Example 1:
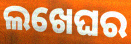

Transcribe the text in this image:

ଲଖେଘର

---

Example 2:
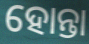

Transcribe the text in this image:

ହୋନ୍ତା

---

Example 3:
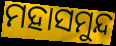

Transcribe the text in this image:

ମହାସମୁନ୍ଦ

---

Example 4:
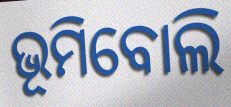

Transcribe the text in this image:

ଭୂମିବୋଲି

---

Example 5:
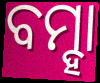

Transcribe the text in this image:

ବମ୍ହା